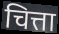
चित्ता